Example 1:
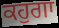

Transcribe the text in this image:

ਕਹੁਗਾ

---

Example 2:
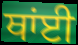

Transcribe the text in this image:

ਥਾਂਈ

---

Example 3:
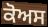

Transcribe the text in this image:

ਕੋਅਸ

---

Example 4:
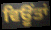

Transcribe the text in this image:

ਵਿਊਂਤਾਂ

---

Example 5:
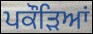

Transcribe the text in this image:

ਪਕੌਡ਼ਿਆਂ